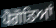
ਪੈਗੋਡਿਆਂ